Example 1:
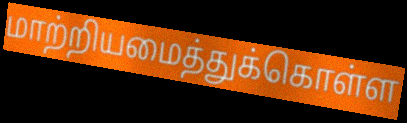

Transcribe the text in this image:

மாற்றியமைத்துக்கொள்ள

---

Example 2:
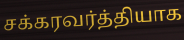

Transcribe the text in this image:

சக்கரவர்த்தியாக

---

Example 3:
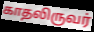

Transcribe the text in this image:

காதலிருவர்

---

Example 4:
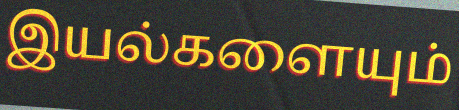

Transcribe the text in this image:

இயல்களையும்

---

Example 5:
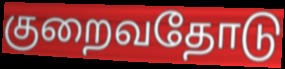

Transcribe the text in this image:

குறைவதோடு